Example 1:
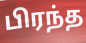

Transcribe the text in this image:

பிரந்த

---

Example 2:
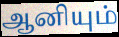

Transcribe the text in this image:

ஆனியும்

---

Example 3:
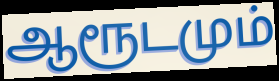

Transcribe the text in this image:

ஆரூடமும்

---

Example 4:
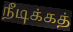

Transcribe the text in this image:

நீடிக்கத்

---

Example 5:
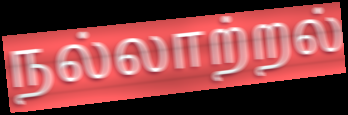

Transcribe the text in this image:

நல்லாற்றல்